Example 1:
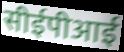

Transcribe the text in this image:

सीईपीआई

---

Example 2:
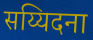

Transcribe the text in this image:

सय्यिदना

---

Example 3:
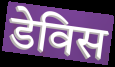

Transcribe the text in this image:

डेविस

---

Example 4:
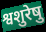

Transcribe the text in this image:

श्वशुरेषु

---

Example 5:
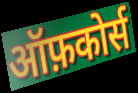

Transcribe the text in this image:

ऑफ़कोर्स